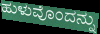
ಹುಳುವೊಂದನ್ನು